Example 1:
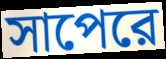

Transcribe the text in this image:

সাপেরে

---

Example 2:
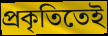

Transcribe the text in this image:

প্রকৃতিতেই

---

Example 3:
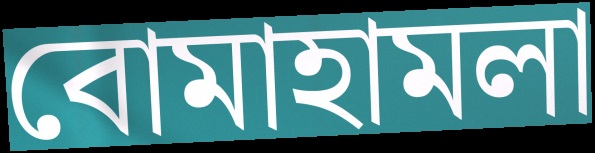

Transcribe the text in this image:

বোমাহামলা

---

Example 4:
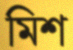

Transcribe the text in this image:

মিশ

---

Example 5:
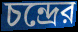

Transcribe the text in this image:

চন্দ্রের